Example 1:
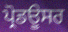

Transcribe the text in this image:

ਪ੍ਰੋਡਊਸਰ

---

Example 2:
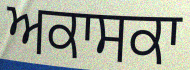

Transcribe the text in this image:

ਅਕਾਸਕਾ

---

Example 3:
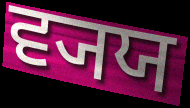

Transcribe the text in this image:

ਵ੍ਯਯ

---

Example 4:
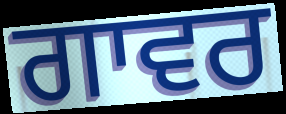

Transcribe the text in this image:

ਗਾਵਰ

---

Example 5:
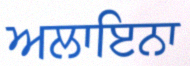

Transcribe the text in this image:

ਅਲਾਇਨਾ